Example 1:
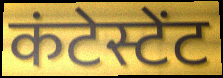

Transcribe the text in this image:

कंटेस्टेंट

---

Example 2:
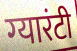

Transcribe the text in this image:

ग्‍यारंटी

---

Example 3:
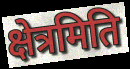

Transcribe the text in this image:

क्षेत्रमिति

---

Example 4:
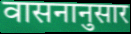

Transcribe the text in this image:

वासनानुसार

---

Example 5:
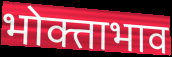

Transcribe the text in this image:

भोक्ताभाव